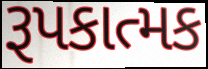
રૂપકાત્મક